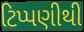
ટિપ્પણીથી